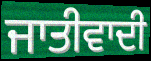
ਜਾਤੀਵਾਦੀ